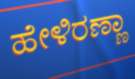
ಹೇಳಿರಣ್ಣಾ